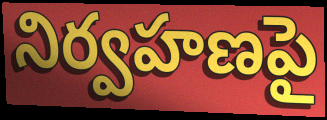
నిర్వహణపై